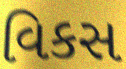
વિકસ